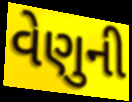
વેણુની